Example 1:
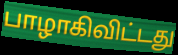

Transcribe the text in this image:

பாழாகிவிட்டது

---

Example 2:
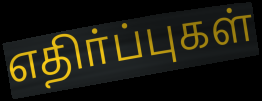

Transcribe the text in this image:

எதிர்ப்புகள்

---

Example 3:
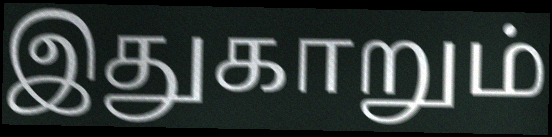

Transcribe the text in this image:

இதுகாறும்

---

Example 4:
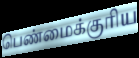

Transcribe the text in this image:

பெண்மைக்குரிய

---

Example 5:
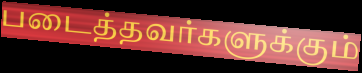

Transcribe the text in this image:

படைத்தவர்களுக்கும்